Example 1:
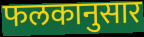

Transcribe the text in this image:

फलकानुसार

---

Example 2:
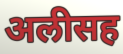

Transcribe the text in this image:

अलीसह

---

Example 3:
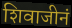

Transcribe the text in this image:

शिवाजीनं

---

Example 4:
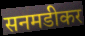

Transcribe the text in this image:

सनमडीकर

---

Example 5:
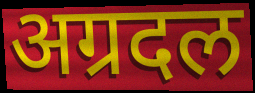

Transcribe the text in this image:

अग्रदल